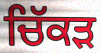
ਚਿੱਕੜ